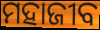
ମହାଜୀବ